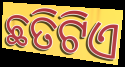
ଛତିଟିଏ